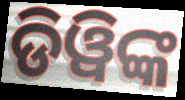
ଡିୱିଙ୍କ